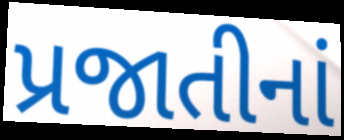
પ્રજાતીનાં